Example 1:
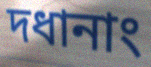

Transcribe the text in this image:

দধানাং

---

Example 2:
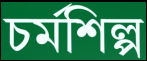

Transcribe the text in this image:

চর্মশিল্প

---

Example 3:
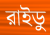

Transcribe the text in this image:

রাইডু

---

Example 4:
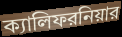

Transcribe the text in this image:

ক্যালিফরনিয়ার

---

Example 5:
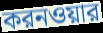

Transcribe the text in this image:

করনওয়ার